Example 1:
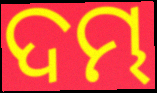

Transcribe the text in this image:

ଦମ୍ଭ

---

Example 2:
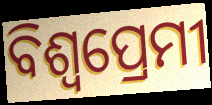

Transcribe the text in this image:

ବିଶ୍ଵପ୍ରେମୀ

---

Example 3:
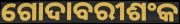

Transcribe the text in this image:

ଗୋଦାବରୀଶଂକ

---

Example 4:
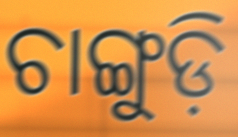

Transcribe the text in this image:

ଚାଙ୍ଗୁଡ଼ି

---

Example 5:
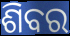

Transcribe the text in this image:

ଶିବର